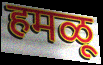
हमळू